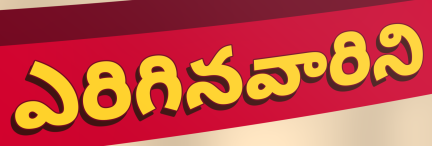
ఎరిగినవారిని